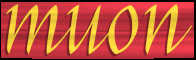
muon